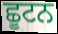
ਛੂਟਨ